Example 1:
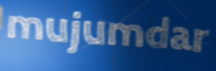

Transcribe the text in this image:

mujumdar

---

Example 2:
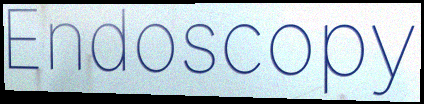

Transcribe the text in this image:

Endoscopy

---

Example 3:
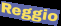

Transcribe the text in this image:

Reggio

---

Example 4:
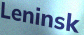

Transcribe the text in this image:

Leninsk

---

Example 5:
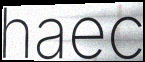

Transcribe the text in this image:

haec